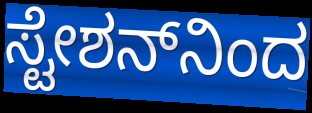
ಸ್ಟೇಶನ್‌ನಿಂದ